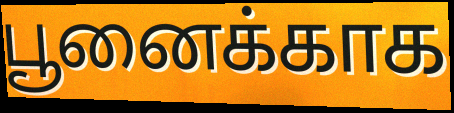
பூனைக்காக